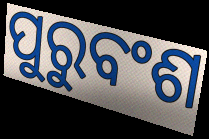
ପୁରୁବଂଶ